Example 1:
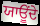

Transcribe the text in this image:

ਯਾਊਂਦੇ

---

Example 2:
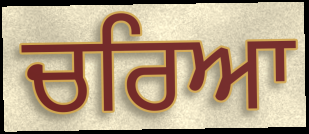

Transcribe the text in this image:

ਚਰਿਆ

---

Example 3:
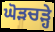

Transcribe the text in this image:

ਘੋੜਚੜ੍ਹੇ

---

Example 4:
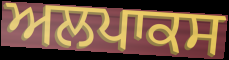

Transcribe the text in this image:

ਅਲਪਾਕਸ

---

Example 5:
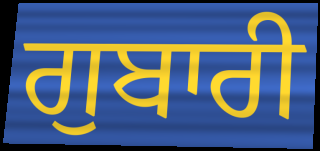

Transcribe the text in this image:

ਗੁਬਾਰੀ